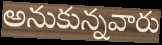
అనుకున్నవారు